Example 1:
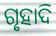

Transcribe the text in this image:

ଗୃହାଦି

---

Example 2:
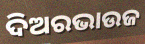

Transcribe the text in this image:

ଦିଅରଭାଉଜ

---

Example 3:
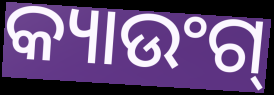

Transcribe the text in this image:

କ୍ୟାଉଂଗ୍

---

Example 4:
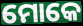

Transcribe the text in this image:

ମୋକେ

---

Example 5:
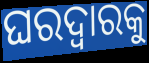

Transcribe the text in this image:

ଘରଦ୍ୱାରକୁ